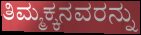
ತಿಮ್ಮಕ್ಕನವರನ್ನು